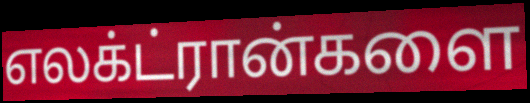
எலக்ட்ரான்களை